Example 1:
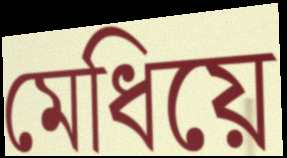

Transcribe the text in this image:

মেধিয়ে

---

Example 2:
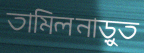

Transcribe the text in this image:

তামিলনাড়ুত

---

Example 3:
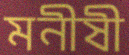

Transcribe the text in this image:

মনীষী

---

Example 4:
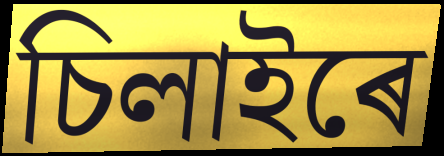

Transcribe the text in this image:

চিলাইৰে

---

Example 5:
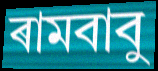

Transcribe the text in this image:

ৰামবাবু